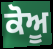
ਕੋਅੂ